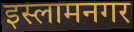
इस्लामनगर